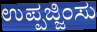
ಉಪ್ಪಜ್ಜಿಂಸು